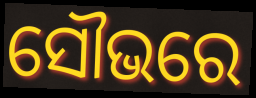
ସୌଭରେ